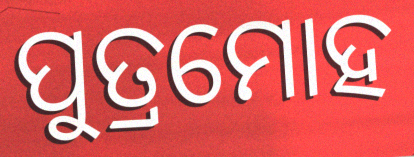
ପୁତ୍ରମୋହ